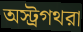
অস্ট্রগথরা